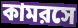
কামরসে